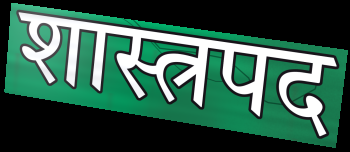
शास्त्रपद